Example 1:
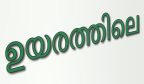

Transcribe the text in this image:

ഉയരത്തിലെ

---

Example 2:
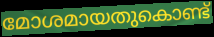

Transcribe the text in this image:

മോശമായതുകൊണ്ട്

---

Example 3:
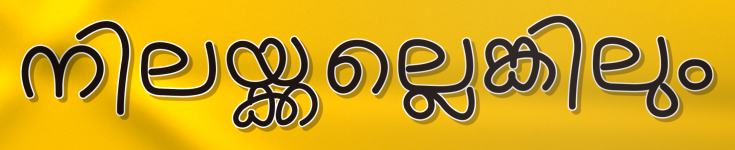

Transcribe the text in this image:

നിലയ്ക്കല്ലെങ്കിലും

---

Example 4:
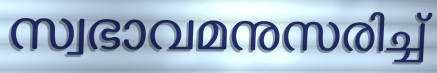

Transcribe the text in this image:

സ്വഭാവമനുസരിച്ച്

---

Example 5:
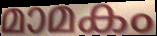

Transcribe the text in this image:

മാമകം